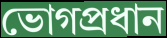
ভোগপ্রধান